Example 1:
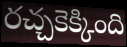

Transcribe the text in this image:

రచ్చకెక్కింది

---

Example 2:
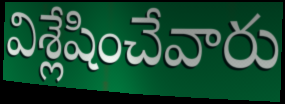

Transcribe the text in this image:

విశ్లేషించేవారు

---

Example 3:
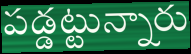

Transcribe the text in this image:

పడ్డట్టున్నారు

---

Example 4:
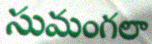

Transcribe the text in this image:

సుమంగలా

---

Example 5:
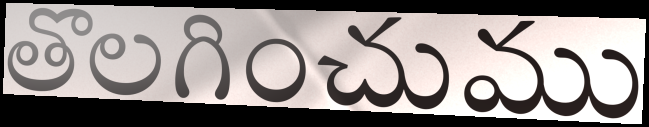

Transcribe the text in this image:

తొలగించుము